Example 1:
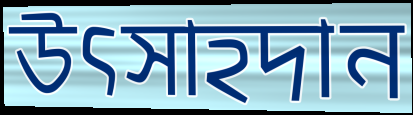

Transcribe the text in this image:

উৎসাহদান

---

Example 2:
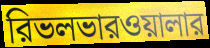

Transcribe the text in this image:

রিভলভারওয়ালার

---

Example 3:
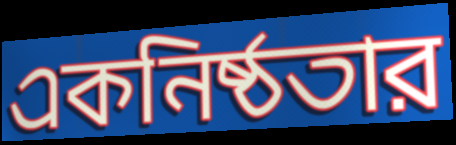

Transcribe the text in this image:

একনিষ্ঠতার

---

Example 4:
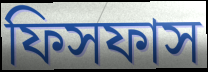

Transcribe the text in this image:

ফিসফাস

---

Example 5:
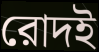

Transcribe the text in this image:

রোদই